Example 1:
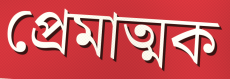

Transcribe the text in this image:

প্রেমাত্মক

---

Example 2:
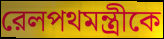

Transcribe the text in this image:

রেলপথমন্ত্রীকে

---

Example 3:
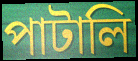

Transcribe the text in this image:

পাটালি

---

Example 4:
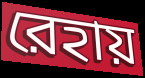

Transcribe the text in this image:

রেহায়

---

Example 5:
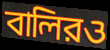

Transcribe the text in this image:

বালিরও